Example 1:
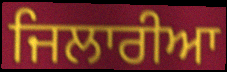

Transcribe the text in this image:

ਜਿਲਾਰੀਆ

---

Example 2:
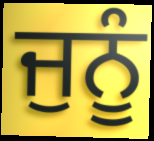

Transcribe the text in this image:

ਜੁਨੂੰ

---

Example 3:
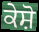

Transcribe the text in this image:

ਕੇਸ਼ੋ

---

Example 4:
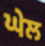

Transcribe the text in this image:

ਘੇਲ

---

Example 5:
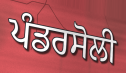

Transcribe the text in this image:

ਪੰਡਰਸੋਲੀ